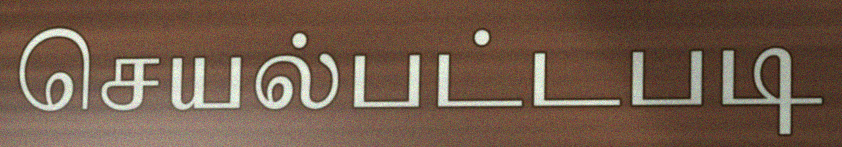
செயல்பட்டபடி